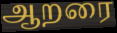
ஆறரை